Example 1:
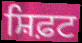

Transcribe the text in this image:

ਸ਼ਿਫ਼ਟ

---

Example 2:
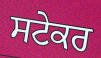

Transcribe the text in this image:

ਸਟੇਕਰ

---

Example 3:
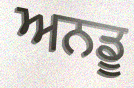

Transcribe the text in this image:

ਅਨਡੂ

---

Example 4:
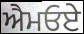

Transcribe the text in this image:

ਐਮਓਏ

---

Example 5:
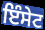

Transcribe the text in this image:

ਇੰਸੇਟ